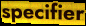
specifier